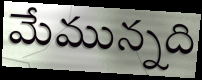
మేమున్నది